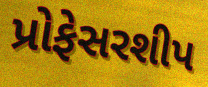
પ્રોફેસરશીપ